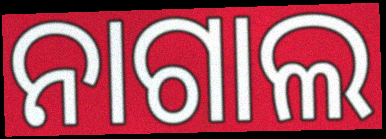
ନାଗାଲ